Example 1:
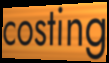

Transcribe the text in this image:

costing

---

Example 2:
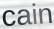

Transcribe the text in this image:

cain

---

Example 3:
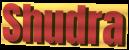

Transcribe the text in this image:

Shudra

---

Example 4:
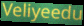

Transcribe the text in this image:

Veliyeedu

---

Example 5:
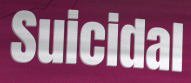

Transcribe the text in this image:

Suicidal